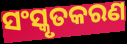
ସଂସ୍କୃତକରଣ